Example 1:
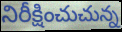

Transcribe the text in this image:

నిరీక్షించుచున్న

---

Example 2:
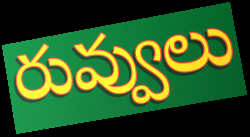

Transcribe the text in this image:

రువ్వులు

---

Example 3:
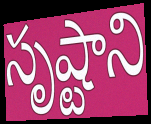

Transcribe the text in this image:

సృష్టాని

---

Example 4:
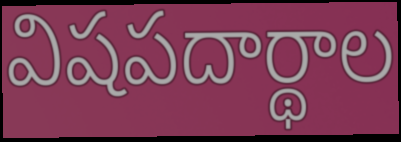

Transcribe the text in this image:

విషపదార్థాల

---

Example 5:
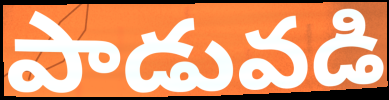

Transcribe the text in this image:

పాడువడి